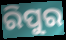
ରିପୁର